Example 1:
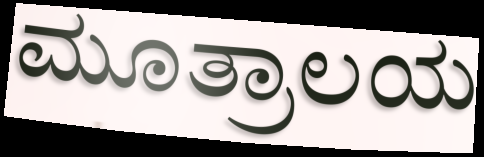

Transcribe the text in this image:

ಮೂತ್ರಾಲಯ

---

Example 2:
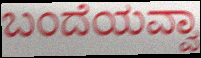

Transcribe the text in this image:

ಬಂದೆಯವ್ವಾ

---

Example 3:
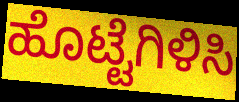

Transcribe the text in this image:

ಹೊಟ್ಟೆಗಿಳಿಸಿ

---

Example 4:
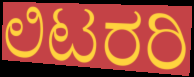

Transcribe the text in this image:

ಲಿಟರರಿ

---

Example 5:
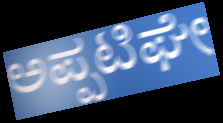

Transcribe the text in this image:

ಅಪ್ಪಟಿಘೇ